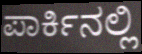
ಪಾರ್ಕಿನಲ್ಲಿ